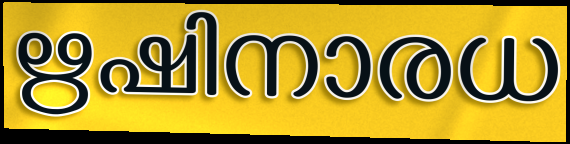
ഋഷിനാരധ